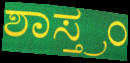
ಶಾಸ್ತ್ರಂ